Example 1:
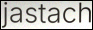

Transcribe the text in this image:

jastach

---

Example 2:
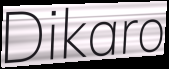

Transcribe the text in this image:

Dikaro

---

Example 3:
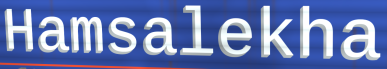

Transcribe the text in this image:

Hamsalekha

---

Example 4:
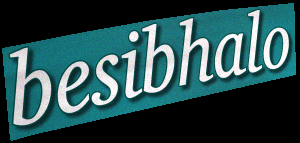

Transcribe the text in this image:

besibhalo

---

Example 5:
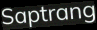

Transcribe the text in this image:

Saptrang